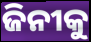
ଜିନୀକୁ